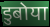
डुबोया